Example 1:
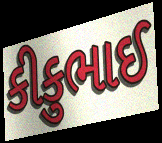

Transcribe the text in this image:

કીકુભાઈ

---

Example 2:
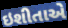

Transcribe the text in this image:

ઇશીતાએ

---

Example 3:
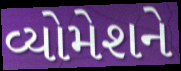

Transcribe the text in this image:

વ્યોમેશને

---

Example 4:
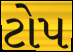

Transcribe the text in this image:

ટોપ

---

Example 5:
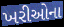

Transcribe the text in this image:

ખરીઓના